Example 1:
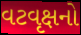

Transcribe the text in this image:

વટવૃક્ષનો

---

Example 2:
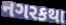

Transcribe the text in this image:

નગરકથા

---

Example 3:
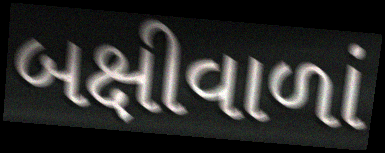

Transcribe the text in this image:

બક્ષીવાળાં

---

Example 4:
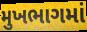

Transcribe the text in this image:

મુખભાગમાં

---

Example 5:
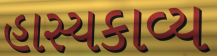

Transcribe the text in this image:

હાસ્યકાવ્ય